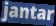
jantar